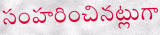
సంహరించినట్లుగా